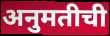
अनुमतीची